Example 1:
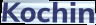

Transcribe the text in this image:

Kochin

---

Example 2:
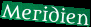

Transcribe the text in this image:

Meridien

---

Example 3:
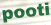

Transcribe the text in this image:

pooti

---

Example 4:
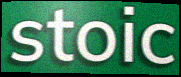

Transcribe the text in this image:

stoic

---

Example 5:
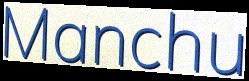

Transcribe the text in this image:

Manchu